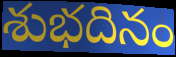
శుభదినం